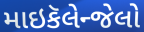
માઇકૅલેન્જેલો